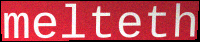
melteth